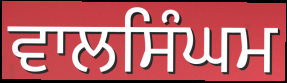
ਵਾਲਸਿੰਘਮ